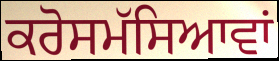
ਕਰੋਸਮੱਸਿਆਵਾਂ